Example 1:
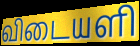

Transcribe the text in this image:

விடையளி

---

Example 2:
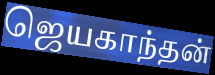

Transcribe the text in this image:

ஜெயகாந்தன்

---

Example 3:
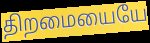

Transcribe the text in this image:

திறமையையே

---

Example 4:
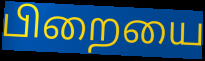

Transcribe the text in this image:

பிறையை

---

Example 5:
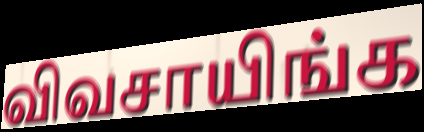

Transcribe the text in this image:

விவசாயிங்க